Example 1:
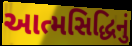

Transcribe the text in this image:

આત્મસિદ્ધિનું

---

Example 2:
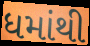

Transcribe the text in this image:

ધમાંથી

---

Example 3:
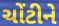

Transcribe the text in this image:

ચોંટીને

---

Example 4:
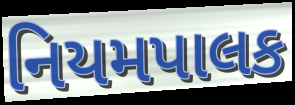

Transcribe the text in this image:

નિયમપાલક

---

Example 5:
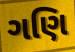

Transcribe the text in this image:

ગણિ